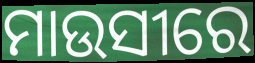
ମାଉସୀରେ